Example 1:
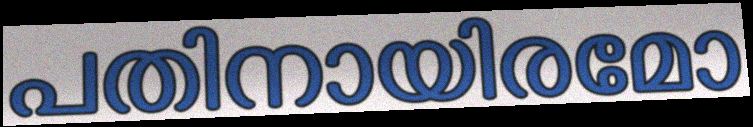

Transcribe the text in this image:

പതിനായിരമോ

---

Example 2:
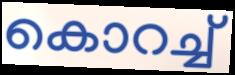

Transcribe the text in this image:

കൊറച്ച്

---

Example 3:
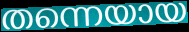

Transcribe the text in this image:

തന്നെയായ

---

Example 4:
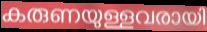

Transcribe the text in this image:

കരുണയുള്ളവരായി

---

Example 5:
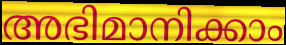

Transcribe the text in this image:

അഭിമാനിക്കാം